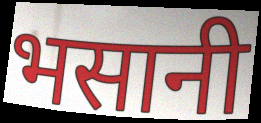
भसानी